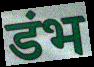
डंभ